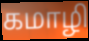
கமாழி